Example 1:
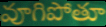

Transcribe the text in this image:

వూగిపోతూ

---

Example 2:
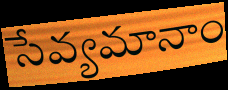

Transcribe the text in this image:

సేవ్యమానాం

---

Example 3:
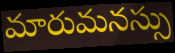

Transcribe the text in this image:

మారుమనస్సు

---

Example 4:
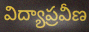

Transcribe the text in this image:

విద్యాప్రవీణ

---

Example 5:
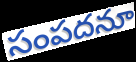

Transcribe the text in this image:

సంపదనూ